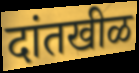
दांतखीळ